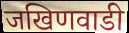
जखिणवाडी